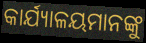
କାର୍ଯ୍ୟାଳୟମାନଙ୍କୁ